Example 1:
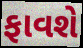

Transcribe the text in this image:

ફાવશે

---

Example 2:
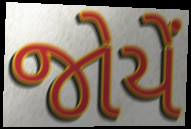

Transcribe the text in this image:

જોયેં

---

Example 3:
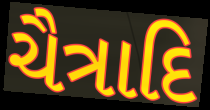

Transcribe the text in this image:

ચૈત્રાદિ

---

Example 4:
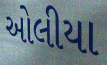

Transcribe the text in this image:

ઓલીયા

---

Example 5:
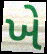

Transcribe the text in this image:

ખે